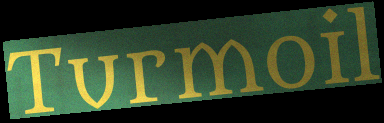
Turmoil